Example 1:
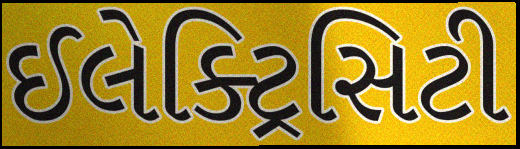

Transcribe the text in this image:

ઈલેક્ટ્રિસિટી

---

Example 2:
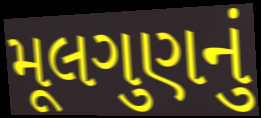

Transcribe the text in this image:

મૂલગુણનું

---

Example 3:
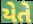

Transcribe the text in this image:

યેતે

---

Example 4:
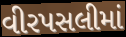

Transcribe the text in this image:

વીરપસલીમાં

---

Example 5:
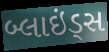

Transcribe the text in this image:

બ્લાઇંડ્સ